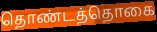
தொண்டத்தொகை